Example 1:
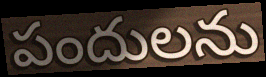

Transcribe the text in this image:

పందులను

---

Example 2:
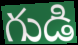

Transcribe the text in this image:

గుడి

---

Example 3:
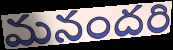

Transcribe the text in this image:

మనందరి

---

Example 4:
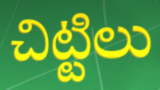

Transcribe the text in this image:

చిట్టిలు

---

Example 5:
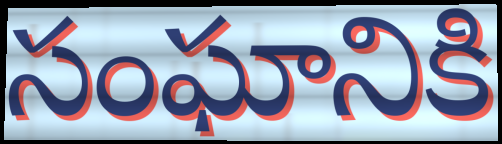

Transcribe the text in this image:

సంఘానికి